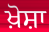
ਖ਼ੋਸ਼ਾ